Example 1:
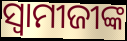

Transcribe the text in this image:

ସ୍ୱାମୀଜୀଙ୍କ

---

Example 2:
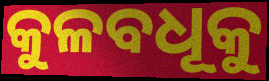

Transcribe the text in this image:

କୁଳବଧୂକୁ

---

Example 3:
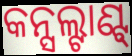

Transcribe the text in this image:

କନ୍ସଲ୍ଟାଣ୍ଟ୍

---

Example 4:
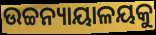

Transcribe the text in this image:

ଉଚ୍ଚନ୍ୟାୟାଳୟକୁ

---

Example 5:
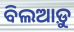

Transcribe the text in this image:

ବିଲଆଡ଼ୁ